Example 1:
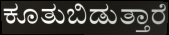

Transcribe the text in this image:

ಕೂತುಬಿಡುತ್ತಾರೆ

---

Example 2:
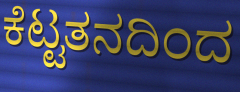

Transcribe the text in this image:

ಕೆಟ್ಟತನದಿಂದ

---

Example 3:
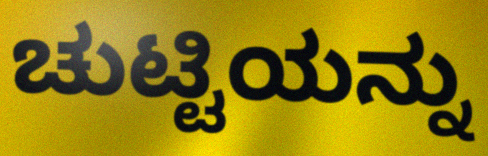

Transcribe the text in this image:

ಚುಟ್ಟಿಯನ್ನು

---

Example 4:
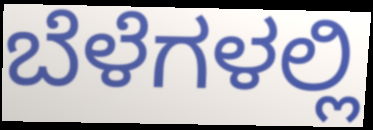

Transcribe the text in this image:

ಬೆಳೆಗಳಲ್ಲಿ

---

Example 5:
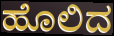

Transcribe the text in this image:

ಹೊಲಿದ